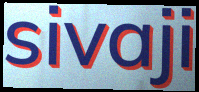
sivaji